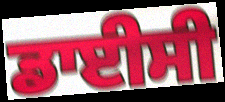
ਡਾਈਸੀ